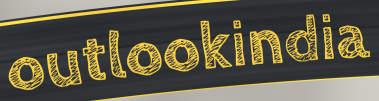
outlookindia